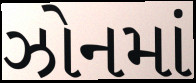
ઝોનમાં